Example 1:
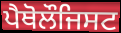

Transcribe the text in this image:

ਪੈਥੋਲੌਜਿਸਟ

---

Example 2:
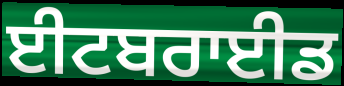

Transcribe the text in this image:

ਈਟਬਰਾਈਡ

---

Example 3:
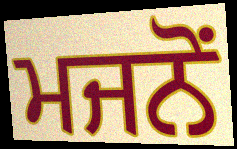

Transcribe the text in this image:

ਮਜਨੋਂ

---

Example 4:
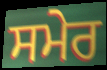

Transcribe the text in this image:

ਸਮੇਰ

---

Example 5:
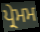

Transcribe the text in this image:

ਪ੍ਰੇਮਮ